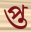
প্ত